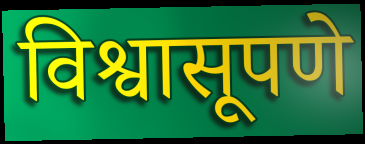
विश्वासूपणे